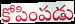
కోపింపడు